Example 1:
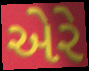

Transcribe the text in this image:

એરે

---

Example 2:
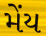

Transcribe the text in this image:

મેંય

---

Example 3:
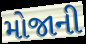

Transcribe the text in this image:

મોજાની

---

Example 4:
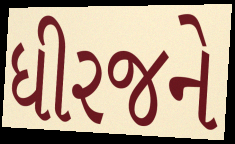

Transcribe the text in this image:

ધીરજને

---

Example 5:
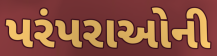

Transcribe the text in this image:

પરંપરાઓની